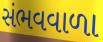
સંભવવાળા